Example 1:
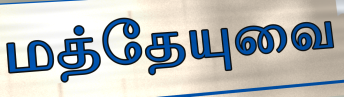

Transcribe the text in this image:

மத்தேயுவை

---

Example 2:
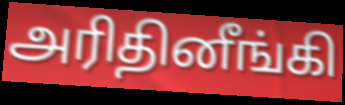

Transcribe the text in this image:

அரிதினீங்கி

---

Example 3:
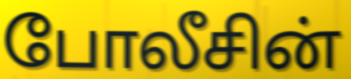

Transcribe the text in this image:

போலீசின்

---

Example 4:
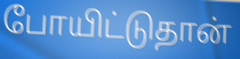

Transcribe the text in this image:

போயிட்டுதான்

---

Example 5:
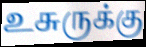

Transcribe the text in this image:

உசுருக்கு